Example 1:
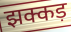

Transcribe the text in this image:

झक्कड़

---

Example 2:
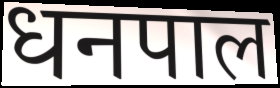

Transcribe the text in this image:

धनपाल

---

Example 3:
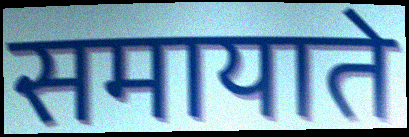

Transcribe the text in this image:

समायाते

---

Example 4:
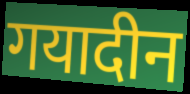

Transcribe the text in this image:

गयादीन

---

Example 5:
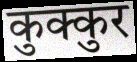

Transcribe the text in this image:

कुक्कुर